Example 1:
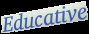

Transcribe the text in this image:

Educative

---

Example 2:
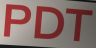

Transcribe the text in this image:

PDT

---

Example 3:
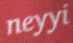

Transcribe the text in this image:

neyyi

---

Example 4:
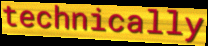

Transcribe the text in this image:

technically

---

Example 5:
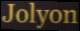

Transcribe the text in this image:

Jolyon